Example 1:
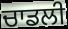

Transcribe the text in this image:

ਚਾਡਲੀ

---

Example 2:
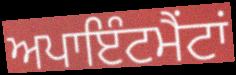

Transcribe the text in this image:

ਅਪਾਇੰਟਮੈਂਟਾਂ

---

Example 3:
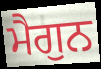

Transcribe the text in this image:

ਮੈਗੁਨ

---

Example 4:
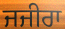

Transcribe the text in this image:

ਜਜੀਰਾ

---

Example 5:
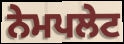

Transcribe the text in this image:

ਨੇਮਪਲੇਟ